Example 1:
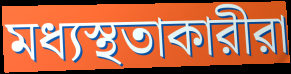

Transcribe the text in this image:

মধ্যস্থতাকারীরা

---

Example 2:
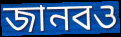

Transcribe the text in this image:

জানবও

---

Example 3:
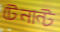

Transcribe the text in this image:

টেনান্ট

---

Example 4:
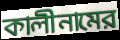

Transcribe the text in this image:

কালীনামের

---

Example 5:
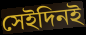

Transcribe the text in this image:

সেইদিনই